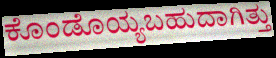
ಕೊಂಡೊಯ್ಯಬಹುದಾಗಿತ್ತು